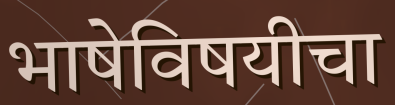
भाषेविषयीचा